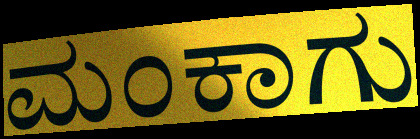
ಮಂಕಾಗು